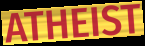
ATHEIST